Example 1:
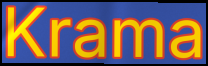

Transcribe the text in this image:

Krama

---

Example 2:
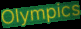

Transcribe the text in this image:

Olympics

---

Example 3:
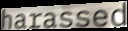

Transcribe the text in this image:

harassed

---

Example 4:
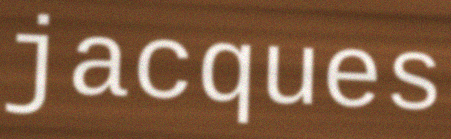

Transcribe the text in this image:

jacques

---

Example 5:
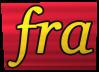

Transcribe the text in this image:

fra